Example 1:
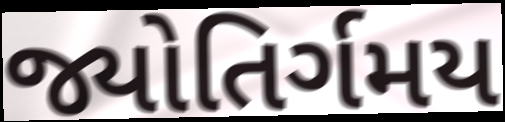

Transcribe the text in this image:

જ્યોતિર્ગમય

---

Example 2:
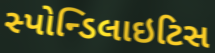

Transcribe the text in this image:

સ્પોન્ડિલાઇટિસ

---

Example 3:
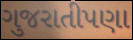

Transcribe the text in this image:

ગુજરાતીપણા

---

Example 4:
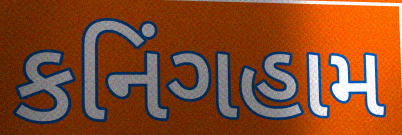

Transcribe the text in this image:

કનિંગહામ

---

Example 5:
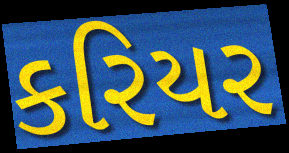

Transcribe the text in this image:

કરિયર